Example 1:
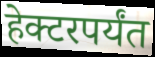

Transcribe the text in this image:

हेक्टरपर्यंत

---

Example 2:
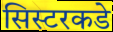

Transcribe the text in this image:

सिस्टरकडे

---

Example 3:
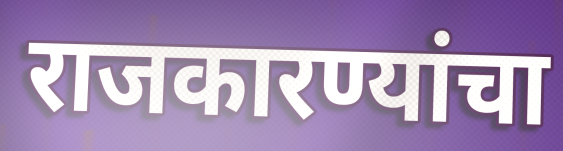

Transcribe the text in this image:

राजकारण्यांचा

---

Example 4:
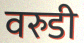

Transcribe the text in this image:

वरुडी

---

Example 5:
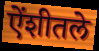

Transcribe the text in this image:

ऐंशीतले